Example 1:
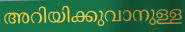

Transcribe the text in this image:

അറിയിക്കുവാനുള്ള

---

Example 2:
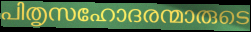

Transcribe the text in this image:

പിതൃസഹോദരന്മാരുടെ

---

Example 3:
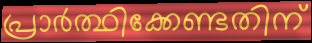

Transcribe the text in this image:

പ്രാർത്ഥിക്കേണ്ടതിന്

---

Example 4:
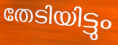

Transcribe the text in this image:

തേടിയിട്ടും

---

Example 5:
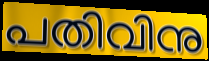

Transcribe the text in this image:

പതിവിനു